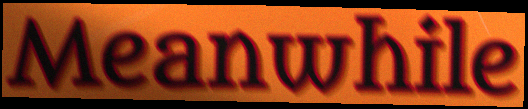
Meanwhile